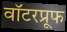
वॉटरप्रूफ